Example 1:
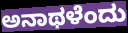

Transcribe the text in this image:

ಅನಾಥಳೆಂದು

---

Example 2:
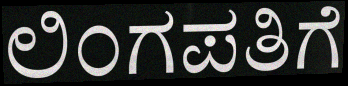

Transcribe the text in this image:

ಲಿಂಗಪತಿಗೆ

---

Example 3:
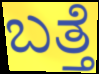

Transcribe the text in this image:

ಬತ್ತೆ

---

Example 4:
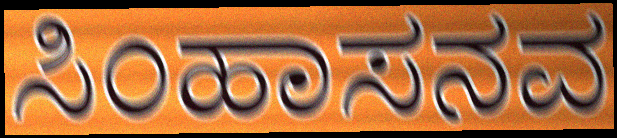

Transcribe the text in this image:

ಸಿಂಹಾಸನವ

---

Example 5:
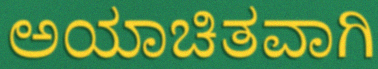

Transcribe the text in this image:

ಅಯಾಚಿತವಾಗಿ